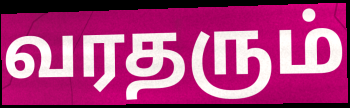
வரதரும்